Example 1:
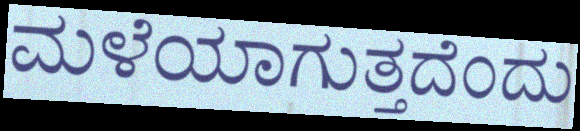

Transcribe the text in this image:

ಮಳೆಯಾಗುತ್ತದೆಂದು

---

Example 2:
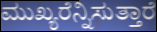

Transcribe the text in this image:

ಮುಖ್ಯರೆನ್ನಿಸುತ್ತಾರೆ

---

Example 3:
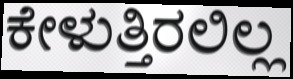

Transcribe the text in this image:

ಕೇಳುತ್ತಿರಲಿಲ್ಲ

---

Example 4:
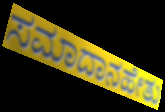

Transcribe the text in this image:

ಸಮಾದಾನಹೇತು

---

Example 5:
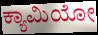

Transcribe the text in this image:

ಕ್ಯಾಮಿಯೋ